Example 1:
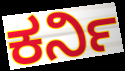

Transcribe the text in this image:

ಕರ್ನಿ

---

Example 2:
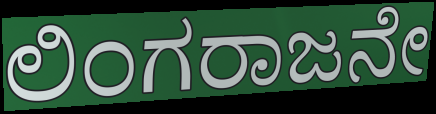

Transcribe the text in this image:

ಲಿಂಗರಾಜನೇ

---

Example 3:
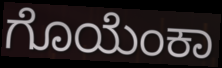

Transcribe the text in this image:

ಗೊಯೆಂಕಾ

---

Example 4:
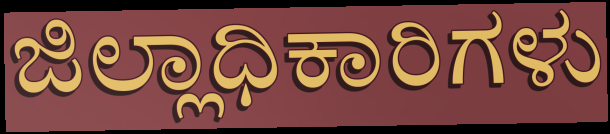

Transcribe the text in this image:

ಜಿಲ್ಲಾಧಿಕಾರಿಗಳು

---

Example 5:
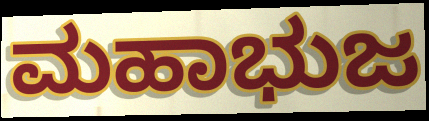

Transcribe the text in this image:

ಮಹಾಭುಜ